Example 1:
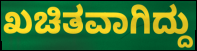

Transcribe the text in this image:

ಖಚಿತವಾಗಿದ್ದು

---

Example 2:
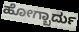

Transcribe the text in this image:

ಹೋಗ್ಬಾರ್ದು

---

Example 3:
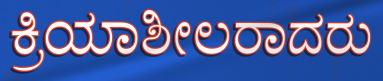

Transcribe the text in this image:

ಕ್ರಿಯಾಶೀಲರಾದರು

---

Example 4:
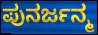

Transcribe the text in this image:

ಪುನರ್ಜನ್ಮ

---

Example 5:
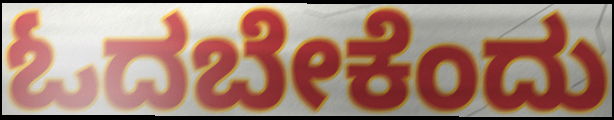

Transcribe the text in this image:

ಓದಬೇಕೆಂದು